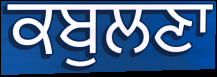
ਕਬੁਲਣਾ